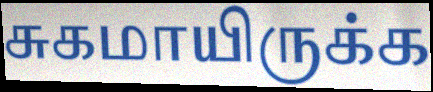
சுகமாயிருக்க